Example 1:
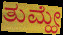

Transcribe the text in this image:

ತುಮ್ಹೇ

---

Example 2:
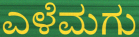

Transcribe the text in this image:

ಎಳೆಮಗು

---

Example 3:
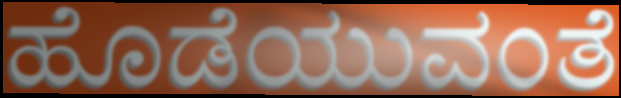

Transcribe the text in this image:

ಹೊಡೆಯುವಂತೆ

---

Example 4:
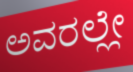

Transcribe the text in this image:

ಅವರಲ್ಲೇ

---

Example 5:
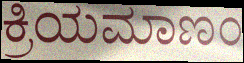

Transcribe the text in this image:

ಕ್ರಿಯಮಾಣಂ